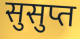
सुसुप्त